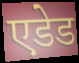
एडेड